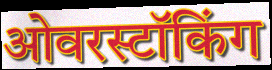
ओवरस्टॉकिंग